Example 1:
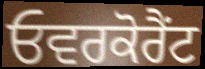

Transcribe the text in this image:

ਓਵਰਕੋਰੈਂਟ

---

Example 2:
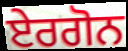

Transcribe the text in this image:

ਏਰਗੋਨ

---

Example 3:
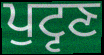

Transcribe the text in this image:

ਪੁਟ੍ਟਣ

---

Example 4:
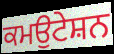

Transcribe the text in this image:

ਕਮਉਟੇਸ਼ਨ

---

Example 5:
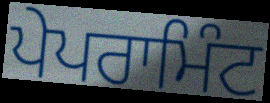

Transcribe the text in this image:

ਪੇਪਰਾਮਿੰਟ